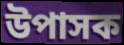
উপাসক